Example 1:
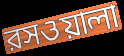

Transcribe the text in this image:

রসওয়ালা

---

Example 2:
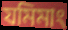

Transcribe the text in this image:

যমিমাং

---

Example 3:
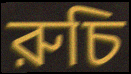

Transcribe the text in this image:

রুচি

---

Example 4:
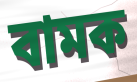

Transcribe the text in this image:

বামক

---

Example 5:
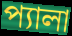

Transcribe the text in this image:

প্যালা